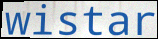
wistar